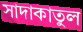
সাদাকাতুল